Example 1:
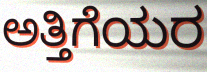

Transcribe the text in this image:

ಅತ್ತಿಗೆಯರ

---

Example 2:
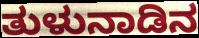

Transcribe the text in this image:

ತುಳುನಾಡಿನ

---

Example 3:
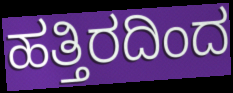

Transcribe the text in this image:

ಹತ್ತಿರದಿಂದ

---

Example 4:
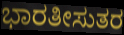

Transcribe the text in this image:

ಭಾರತೀಸುತರ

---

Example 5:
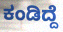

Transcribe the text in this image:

ಕಂಡಿದ್ದೆ